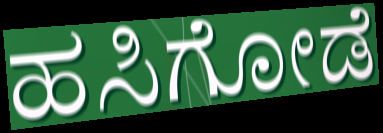
ಹಸಿಗೋಡೆ